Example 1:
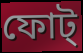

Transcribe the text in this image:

ফোট্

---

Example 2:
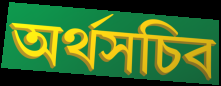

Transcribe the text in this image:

অর্থসচিব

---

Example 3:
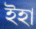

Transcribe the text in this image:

ইহা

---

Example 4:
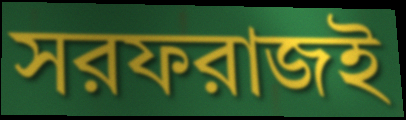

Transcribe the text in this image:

সরফরাজই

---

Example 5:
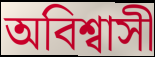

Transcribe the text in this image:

অবিশ্বাসী